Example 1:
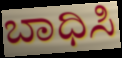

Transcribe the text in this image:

ಬಾಧಿಸಿ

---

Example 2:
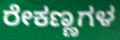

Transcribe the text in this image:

ರೇಕಣ್ಣಗಳ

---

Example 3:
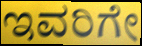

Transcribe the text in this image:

ಇವರಿಗೇ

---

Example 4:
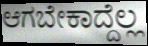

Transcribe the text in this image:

ಆಗಬೇಕಾದ್ದೆಲ್ಲ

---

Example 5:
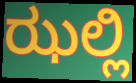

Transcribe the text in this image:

ಝಲ್ಲಿ